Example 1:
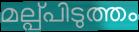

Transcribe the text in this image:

മല്പ്പിടുത്തം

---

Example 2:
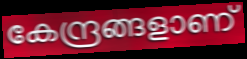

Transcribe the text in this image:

കേന്ദ്രങ്ങളാണ്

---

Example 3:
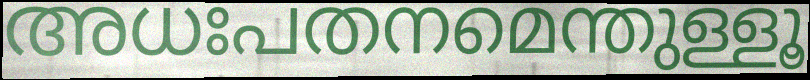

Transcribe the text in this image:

അധഃപതനമെന്തുള്ളൂ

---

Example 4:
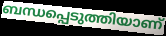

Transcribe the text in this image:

ബന്ധപ്പെടുത്തിയാണ്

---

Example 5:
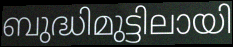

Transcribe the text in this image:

ബുദ്ധിമുട്ടിലായി